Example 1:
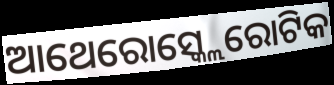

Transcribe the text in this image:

ଆଥେରୋସ୍କ୍ଲେରୋଟିକ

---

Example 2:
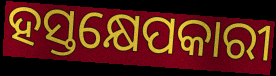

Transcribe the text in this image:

ହସ୍ତକ୍ଷେପକାରୀ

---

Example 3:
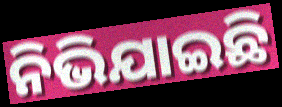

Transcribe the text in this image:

ନିଭିଯାଇଛି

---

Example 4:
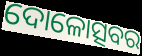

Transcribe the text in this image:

ଦୋଳୋତ୍ସବର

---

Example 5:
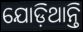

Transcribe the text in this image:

ଯୋଡ଼ିଥାନ୍ତି